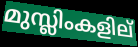
മുസ്ലിംകളില്